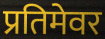
प्रतिमेवर